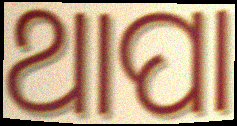
ଥାପା